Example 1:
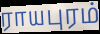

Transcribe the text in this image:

ராயபுரம்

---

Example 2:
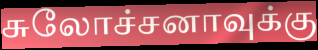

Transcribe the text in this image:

சுலோச்சனாவுக்கு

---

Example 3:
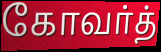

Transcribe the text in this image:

கோவர்த்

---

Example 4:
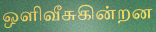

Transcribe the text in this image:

ஒளிவீசுகின்றன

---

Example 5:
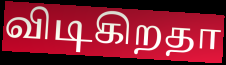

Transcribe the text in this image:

விடிகிறதா